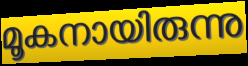
മൂകനായിരുന്നു